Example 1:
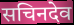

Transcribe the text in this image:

सचिनदेव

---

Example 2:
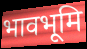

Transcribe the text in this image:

भावभूमि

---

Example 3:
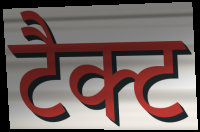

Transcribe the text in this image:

टैक्ट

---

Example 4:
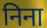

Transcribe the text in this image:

निना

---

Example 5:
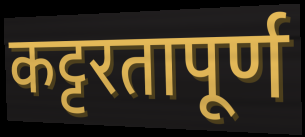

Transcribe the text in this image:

कट्टरतापूर्ण